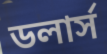
ডলার্স